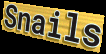
Snails